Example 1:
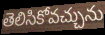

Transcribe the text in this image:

తెలిసికోవచ్చును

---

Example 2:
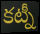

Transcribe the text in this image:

కట్నీ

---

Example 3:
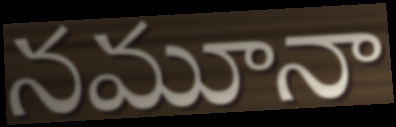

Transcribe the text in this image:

నమూనా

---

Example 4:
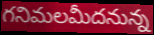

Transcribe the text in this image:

గనిమలమీదనున్న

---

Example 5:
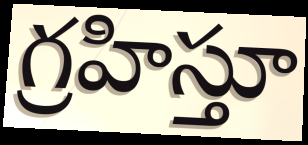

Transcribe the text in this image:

గ్రహిస్తూ